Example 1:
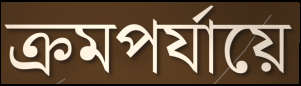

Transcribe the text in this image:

ক্রমপর্যায়ে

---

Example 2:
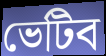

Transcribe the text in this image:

ভেটিব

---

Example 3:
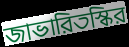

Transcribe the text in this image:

জাভারিতস্কির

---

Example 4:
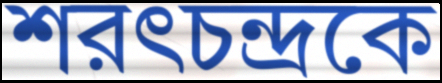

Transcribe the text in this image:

শরৎচন্দ্রকে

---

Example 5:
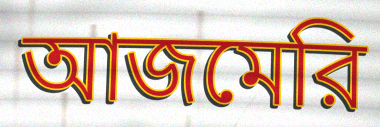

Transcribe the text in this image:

আজমেরি